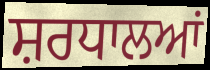
ਸ਼ਰਧਾਲਆਂ